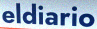
eldiario